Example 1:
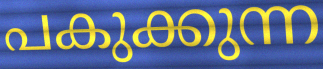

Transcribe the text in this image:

പകുക്കുന്ന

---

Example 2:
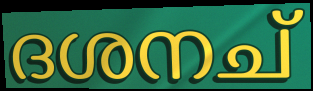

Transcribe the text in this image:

ദശനച്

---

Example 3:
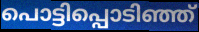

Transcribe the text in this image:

പൊട്ടിപ്പൊടിഞ്ഞ്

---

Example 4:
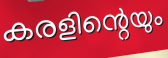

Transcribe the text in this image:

കരളിന്റെയും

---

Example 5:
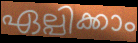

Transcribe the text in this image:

ഏല്പിക്കാം